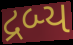
દ્રબ્ય